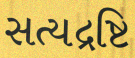
સત્યદ્રષ્ટિ